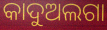
କାଦୁଅଲଗା